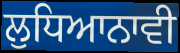
ਲੁਧਿਆਨਾਵੀ